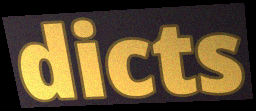
dicts